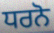
ਧਰਨੋ